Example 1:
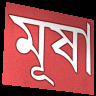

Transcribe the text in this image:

মূষা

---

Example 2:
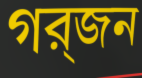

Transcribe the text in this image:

গর্‍জন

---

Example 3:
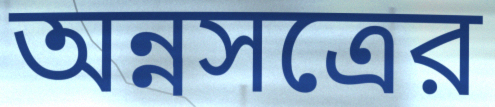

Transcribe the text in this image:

অন্নসত্রের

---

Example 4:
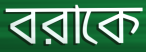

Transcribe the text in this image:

বরাকে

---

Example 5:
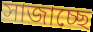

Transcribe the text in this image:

সাজাচ্ছে